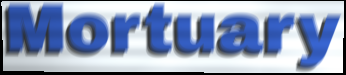
Mortuary